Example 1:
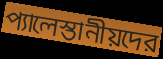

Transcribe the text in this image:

প্যালেস্তানীয়দের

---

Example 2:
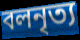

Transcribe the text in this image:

বলনৃত্য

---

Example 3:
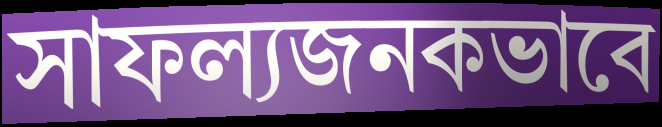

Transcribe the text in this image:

সাফল্যজনকভাবে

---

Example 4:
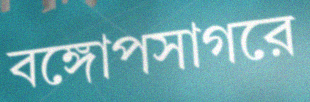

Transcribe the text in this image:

বঙ্গোপসাগরে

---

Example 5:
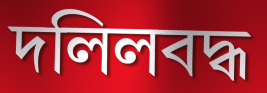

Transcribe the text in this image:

দলিলবদ্ধ